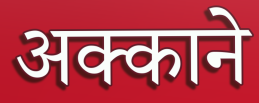
अक्काने